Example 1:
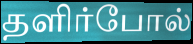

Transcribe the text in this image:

தளிர்போல்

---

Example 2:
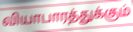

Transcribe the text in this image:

வியாபாரத்துக்கும்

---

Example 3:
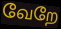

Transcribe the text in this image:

வேறே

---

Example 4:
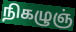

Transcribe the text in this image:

நிகழுஞ்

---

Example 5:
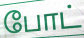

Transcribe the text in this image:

போட்